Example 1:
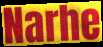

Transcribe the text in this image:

Narhe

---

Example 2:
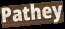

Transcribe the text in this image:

Pathey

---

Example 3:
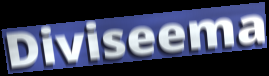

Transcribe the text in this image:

Diviseema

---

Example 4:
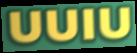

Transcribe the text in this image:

UUIU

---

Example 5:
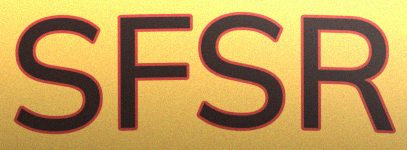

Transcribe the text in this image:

SFSR